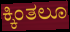
ಕ್ಕಿಂತಲೂ